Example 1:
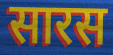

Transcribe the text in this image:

सारस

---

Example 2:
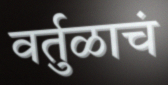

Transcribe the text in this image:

वर्तुळाचं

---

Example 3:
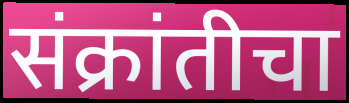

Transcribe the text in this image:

संक्रांतीचा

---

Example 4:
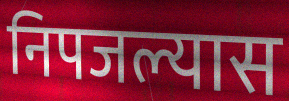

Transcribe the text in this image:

निपजल्यास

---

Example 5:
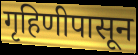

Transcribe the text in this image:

गृहिणीपासून